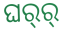
ଘର୍‍ର୍